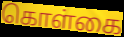
கொள்கை